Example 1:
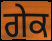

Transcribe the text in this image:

ਗੇਕ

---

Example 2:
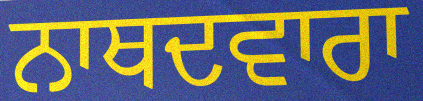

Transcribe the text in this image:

ਨਾਥਦਵਾਰਾ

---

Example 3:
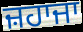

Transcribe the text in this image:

ਜ਼ਹਾਜਾ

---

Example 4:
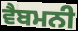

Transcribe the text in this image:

ਵੈਬਮਨੀ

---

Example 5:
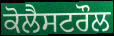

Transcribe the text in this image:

ਕੋਲੈਸਟਰੌਲ